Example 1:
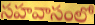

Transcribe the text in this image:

సహవాసంలో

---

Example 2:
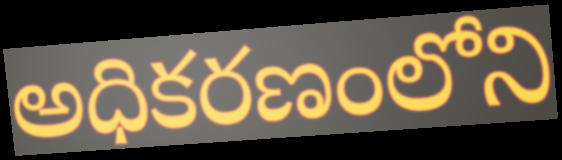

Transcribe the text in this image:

అధికరణంలోని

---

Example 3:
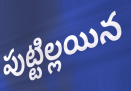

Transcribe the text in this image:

పుట్టిల్లయిన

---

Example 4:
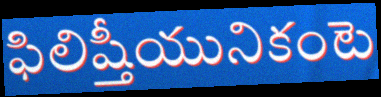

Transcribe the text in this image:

ఫిలిష్తీయునికంటె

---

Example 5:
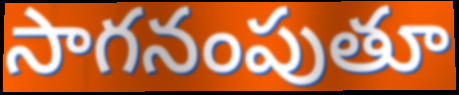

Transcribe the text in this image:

సాగనంపుతూ